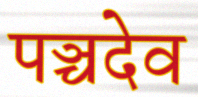
पञ्चदेव